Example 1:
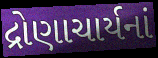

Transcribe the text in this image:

દ્રોણાચાર્યનાં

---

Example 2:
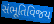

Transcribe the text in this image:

સંભૂતિવિજય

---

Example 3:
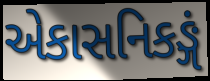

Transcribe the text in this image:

એકાસનિકઙ્ગં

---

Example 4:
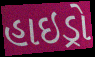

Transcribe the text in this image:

હાઇડ્રો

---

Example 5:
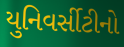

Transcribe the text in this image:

યુનિવર્સીટીનો